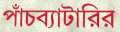
পাঁচব্যাটারির